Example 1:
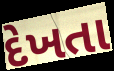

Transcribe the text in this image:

દેખતા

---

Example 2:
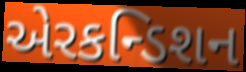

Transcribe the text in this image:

એરકન્ડિશન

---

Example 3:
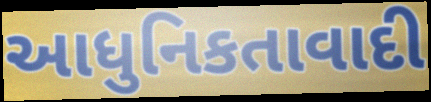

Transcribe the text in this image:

આધુનિકતાવાદી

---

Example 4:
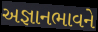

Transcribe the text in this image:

અજ્ઞાનભાવને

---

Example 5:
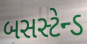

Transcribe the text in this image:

બસસ્ટેન્ડ